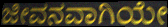
ಜೀವನವಾಗಿಯೇ